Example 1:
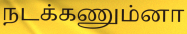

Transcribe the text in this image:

நடக்கணும்னா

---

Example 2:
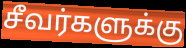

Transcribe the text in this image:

சீவர்களுக்கு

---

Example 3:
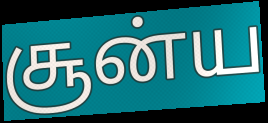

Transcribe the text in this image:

சூன்ய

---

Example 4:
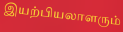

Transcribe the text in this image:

இயற்பியலாளரும்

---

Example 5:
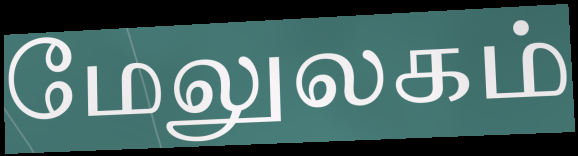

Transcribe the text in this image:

மேலுலகம்